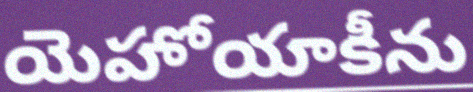
యెహోయాకీను